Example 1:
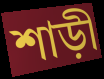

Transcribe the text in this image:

শাড়ী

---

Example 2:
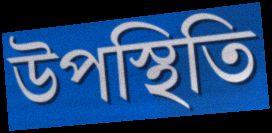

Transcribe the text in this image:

উপস্থিতি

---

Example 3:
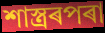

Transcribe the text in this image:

শাস্ত্ৰৰপৰা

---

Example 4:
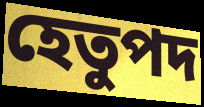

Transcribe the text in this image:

হেতুপদ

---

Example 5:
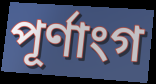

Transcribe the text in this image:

পূৰ্ণাংগ